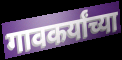
गावकर्यांच्या